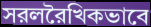
সরলরৈখিকভাবে